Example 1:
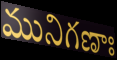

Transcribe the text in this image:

మునిగణాః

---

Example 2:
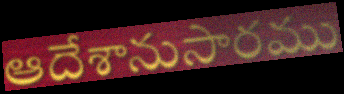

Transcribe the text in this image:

ఆదేశానుసారము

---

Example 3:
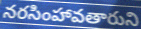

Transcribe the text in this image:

నరసింహావతారుని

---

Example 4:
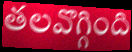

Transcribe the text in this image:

తలవొగ్గింది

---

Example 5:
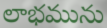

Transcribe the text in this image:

లాభమును